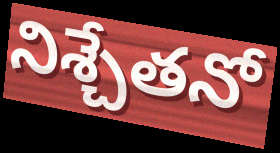
నిశ్చేతనో